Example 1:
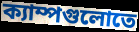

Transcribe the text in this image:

ক্যাম্পগুলোতে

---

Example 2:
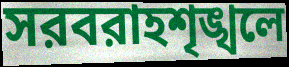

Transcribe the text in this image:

সরবরাহশৃঙ্খলে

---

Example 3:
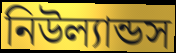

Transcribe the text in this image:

নিউল্যান্ডস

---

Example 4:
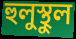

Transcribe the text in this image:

হুলুস্থুল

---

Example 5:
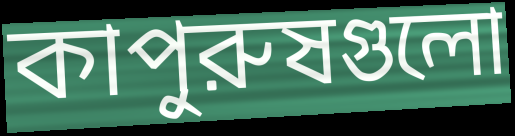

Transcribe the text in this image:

কাপুরুষগুলো